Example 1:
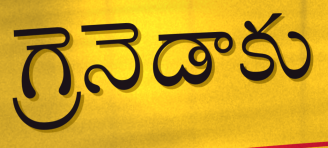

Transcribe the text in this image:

గ్రెనెడాకు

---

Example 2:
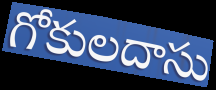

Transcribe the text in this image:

గోకులదాసు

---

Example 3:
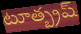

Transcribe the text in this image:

టూత్బ్రష్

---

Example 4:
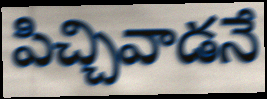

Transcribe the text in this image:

పిచ్చివాడనే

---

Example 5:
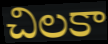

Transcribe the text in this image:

చిలకా